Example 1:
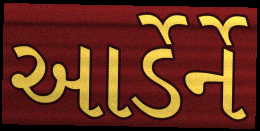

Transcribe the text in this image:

આર્ડેર્ને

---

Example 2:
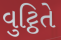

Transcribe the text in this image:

વુટ્ઠિતે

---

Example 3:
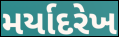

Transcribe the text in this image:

મર્યાદરેખ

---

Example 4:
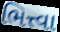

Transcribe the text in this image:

ભિત્ત્વા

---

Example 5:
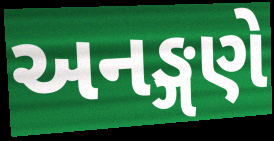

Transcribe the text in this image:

અનઙ્ગણે